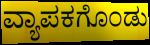
ವ್ಯಾಪಕಗೊಂಡು